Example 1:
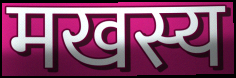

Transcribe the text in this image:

मखस्य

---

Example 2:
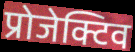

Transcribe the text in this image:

प्रोजेक्टिव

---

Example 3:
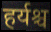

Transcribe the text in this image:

हर्यश्च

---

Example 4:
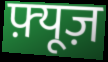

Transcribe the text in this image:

फ़्यूज़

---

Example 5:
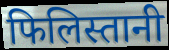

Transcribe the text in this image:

फिलिस्तानी